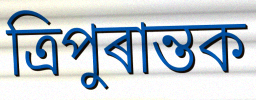
ত্ৰিপুৰান্তক